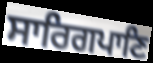
ਸਾਰਿਗਪਾਣਿ